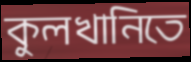
কুলখানিতে